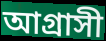
আগ্ৰাসী